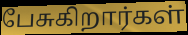
பேசுகிறார்கள்